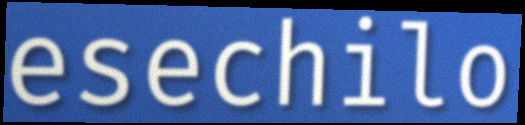
esechilo